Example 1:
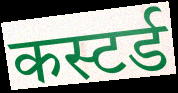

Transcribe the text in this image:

कस्टर्ड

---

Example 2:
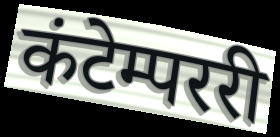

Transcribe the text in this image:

कंटेम्पररी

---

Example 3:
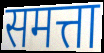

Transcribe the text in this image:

समत्ता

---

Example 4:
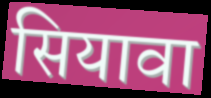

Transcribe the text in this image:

सियावा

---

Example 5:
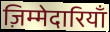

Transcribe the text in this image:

ज़िम्मेदारियाँ